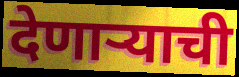
देणाऱ्याची